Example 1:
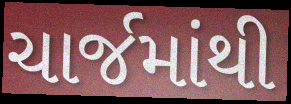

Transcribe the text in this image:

ચાર્જમાંથી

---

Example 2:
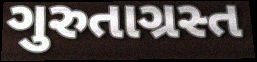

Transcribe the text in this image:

ગુરુતાગ્રસ્ત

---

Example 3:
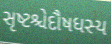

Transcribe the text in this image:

સૃષ્ટશ્ચેદૌષધસ્ય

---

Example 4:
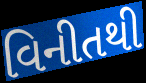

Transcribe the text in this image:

વિનીતથી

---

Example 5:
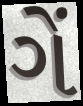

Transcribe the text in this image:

ગેં